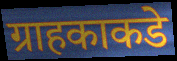
ग्राहकाकडे